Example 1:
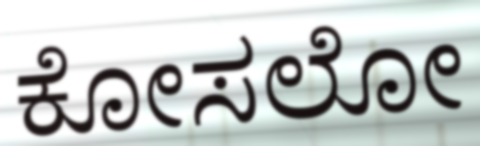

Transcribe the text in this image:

ಕೋಸಲೋ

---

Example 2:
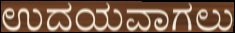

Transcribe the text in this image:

ಉದಯವಾಗಲು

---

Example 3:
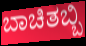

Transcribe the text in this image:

ಬಾಚಿತಬ್ಬಿ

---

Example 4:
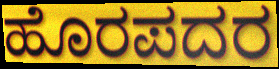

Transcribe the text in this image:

ಹೊರಪದರ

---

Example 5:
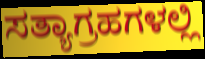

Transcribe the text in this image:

ಸತ್ಯಾಗ್ರಹಗಳಲ್ಲಿ